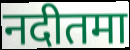
नदीतमा